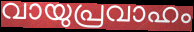
വായുപ്രവാഹം